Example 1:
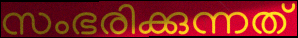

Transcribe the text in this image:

സംഭരിക്കുന്നത്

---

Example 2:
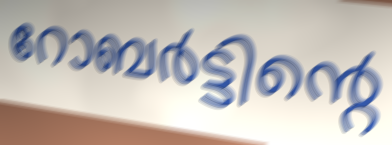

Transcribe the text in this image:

റോബർട്ടിന്റെ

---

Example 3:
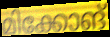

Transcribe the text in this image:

മിക്കോങ്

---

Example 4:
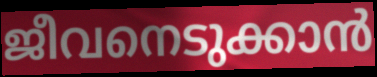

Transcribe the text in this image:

ജീവനെടുക്കാൻ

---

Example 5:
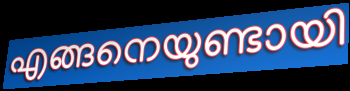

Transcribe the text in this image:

എങ്ങനെയുണ്ടായി